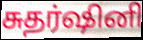
சுதர்ஷினி